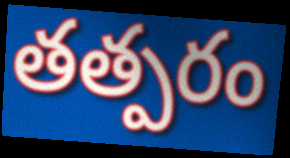
తత్పరం